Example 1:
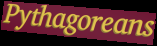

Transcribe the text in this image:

Pythagoreans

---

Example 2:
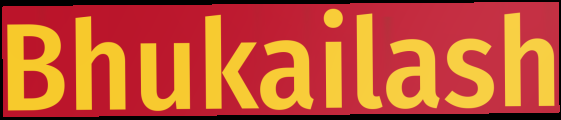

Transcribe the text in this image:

Bhukailash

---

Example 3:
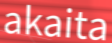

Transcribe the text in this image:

akaita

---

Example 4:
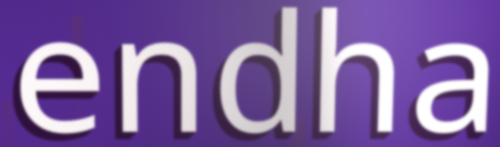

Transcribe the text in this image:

endha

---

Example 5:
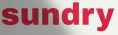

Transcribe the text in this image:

sundry